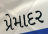
પ્રેમાદર